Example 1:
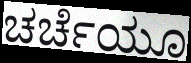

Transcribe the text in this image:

ಚರ್ಚೆಯೂ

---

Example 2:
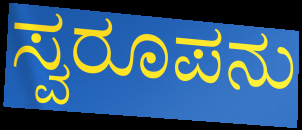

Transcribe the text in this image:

ಸ್ವರೂಪನು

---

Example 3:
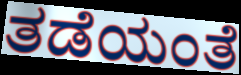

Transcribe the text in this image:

ತಡೆಯಂತೆ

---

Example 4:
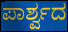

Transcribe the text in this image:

ಪಾರ್ಶ್ವದ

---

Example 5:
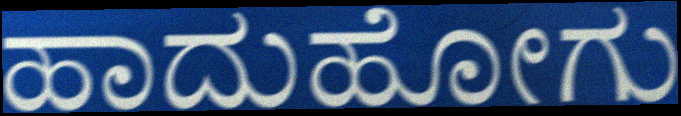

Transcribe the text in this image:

ಹಾದುಹೋಗು